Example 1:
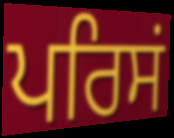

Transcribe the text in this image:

ਪਰਿਸਂ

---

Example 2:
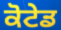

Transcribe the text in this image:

ਕੋਟੇਡ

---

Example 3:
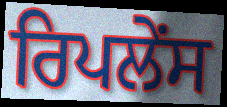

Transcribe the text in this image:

ਰਿਪਲੇਂਸ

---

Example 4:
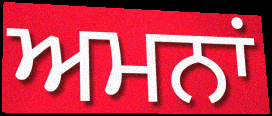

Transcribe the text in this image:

ਅਮਨਾਂ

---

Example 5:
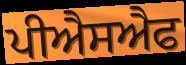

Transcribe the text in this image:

ਪੀਐਸਐਫ